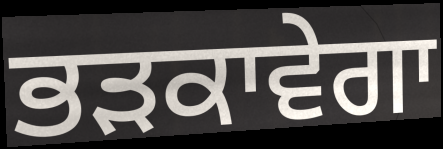
ਭੜਕਾਵੇਗਾ